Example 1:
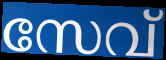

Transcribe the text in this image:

സേവ്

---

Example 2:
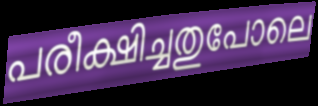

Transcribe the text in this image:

പരീക്ഷിച്ചതുപോലെ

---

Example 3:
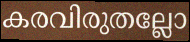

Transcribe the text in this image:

കരവിരുതല്ലോ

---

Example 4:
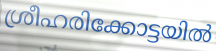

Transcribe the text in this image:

ശ്രീഹരിക്കോട്ടയിൽ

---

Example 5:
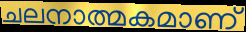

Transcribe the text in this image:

ചലനാത്മകമാണ്